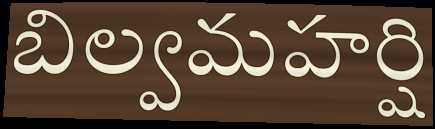
బిల్వమహర్షి